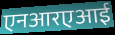
एनआरएआई